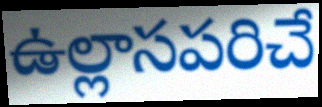
ఉల్లాసపరిచే